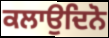
ਕਲਾਉਦਿਨੋ